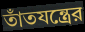
তাঁতযন্ত্রের